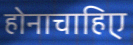
होनाचाहिए